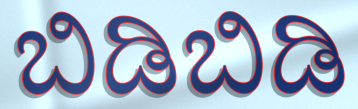
ಬಿಡಿಬಿಡಿ